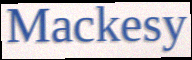
Mackesy